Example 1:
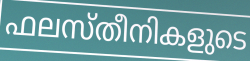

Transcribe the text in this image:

ഫലസ്തീനികളുടെ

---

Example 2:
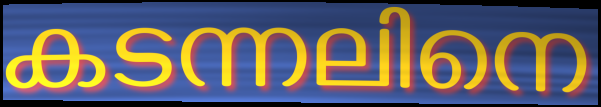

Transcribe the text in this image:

കടന്നലിനെ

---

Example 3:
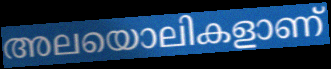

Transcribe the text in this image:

അലയൊലികളാണ്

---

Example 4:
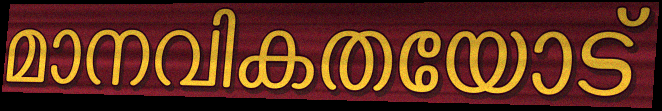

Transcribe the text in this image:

മാനവികതയോട്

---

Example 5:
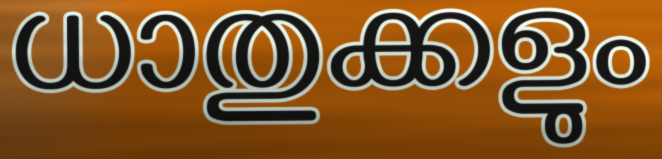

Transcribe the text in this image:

ധാതുക്കളും